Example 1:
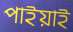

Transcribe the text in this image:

পাইয়াই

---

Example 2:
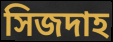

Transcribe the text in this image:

সিজদাহ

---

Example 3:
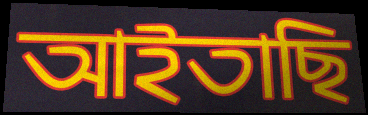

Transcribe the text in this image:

আইতাছি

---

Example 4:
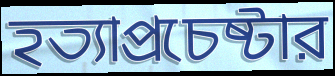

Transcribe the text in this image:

হত্যাপ্রচেষ্টার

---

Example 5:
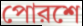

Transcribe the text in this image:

পোরশে